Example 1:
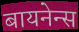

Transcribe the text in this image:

बायनेन्स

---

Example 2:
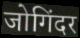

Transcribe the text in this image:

जोगिंदर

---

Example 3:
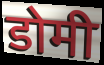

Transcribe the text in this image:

डोमी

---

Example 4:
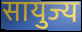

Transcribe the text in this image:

सायुज्य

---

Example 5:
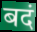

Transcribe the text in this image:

बदं